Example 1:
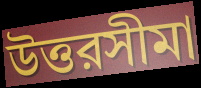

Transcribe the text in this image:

উত্তরসীমা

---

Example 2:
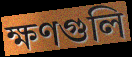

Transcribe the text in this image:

ক্ষণগুলি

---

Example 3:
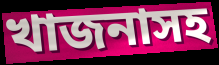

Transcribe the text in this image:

খাজনাসহ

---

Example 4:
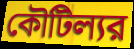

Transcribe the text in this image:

কৌটিল্যর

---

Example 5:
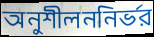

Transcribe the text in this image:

অনুশীলননির্ভর